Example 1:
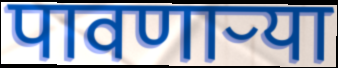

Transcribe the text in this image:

पावणाऱ्या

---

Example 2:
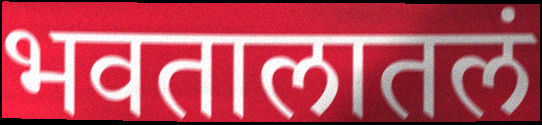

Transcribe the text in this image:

भवतालातलं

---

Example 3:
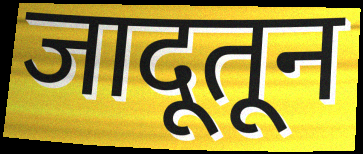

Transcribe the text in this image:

जादूतून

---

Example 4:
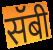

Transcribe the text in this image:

सॅबी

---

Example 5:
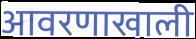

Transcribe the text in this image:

आवरणाखाली